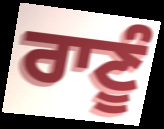
ਰਾਣੂੰ